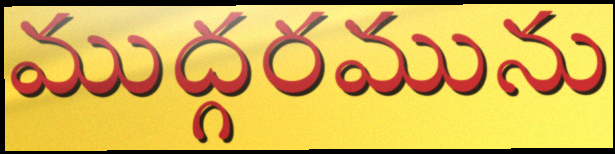
ముద్గరమును